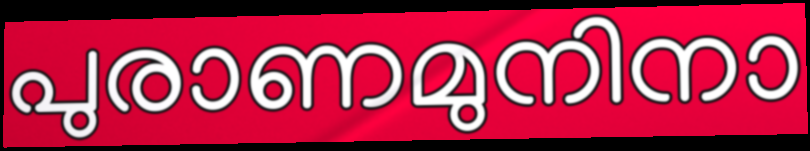
പുരാണമുനിനാ